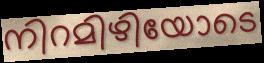
നിറമിഴിയോടെ